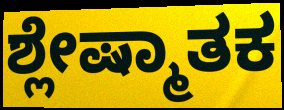
ಶ್ಲೇಷ್ಮಾತಕ